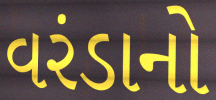
વરંડાનો